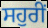
ਸਹੁਰੀਂ